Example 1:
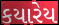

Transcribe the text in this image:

કયારેય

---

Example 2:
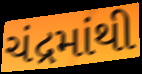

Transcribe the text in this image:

ચંદ્રમાંથી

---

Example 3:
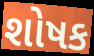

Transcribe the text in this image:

શોષક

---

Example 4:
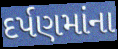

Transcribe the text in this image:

દર્પણમાંના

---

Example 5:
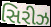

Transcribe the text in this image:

સિરીઝ